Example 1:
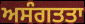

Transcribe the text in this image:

ਅਸੰਗਤਤਾ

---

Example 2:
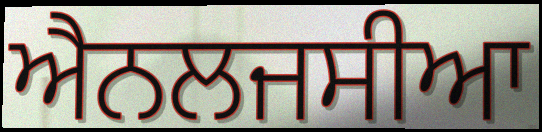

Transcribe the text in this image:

ਐਨਲਜਸੀਆ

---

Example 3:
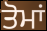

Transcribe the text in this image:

ਤੋਮਾਂ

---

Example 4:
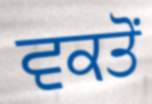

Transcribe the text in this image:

ਵਕਤੋਂ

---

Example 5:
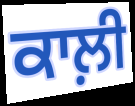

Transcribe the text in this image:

ਕਾਲ਼ੀ